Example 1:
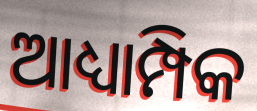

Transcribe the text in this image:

ଆଧ୍ୟାମ୍ପିକ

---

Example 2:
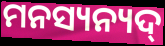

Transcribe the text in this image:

ମନସ୍ୟନ୍ୟଦ୍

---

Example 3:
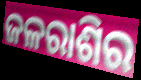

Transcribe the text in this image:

ଜଳରାଶିର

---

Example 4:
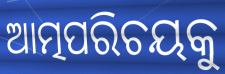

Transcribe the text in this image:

ଆତ୍ମପରିଚୟକୁ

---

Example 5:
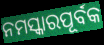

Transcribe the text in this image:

ନମସ୍କାରପୂର୍ବକ